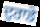
ਦੁਰਾਡੇ